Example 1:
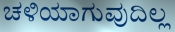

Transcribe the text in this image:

ಚಳಿಯಾಗುವುದಿಲ್ಲ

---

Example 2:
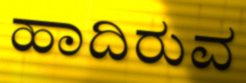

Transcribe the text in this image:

ಹಾದಿರುವ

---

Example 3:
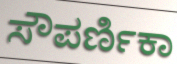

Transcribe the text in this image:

ಸೌಪರ್ಣಿಕಾ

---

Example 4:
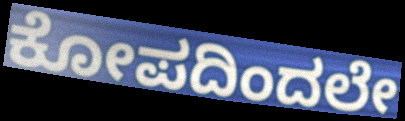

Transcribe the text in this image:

ಕೋಪದಿಂದಲೇ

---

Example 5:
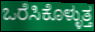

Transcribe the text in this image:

ಒರೆಸಿಕೊಳ್ಳುತ್ತ